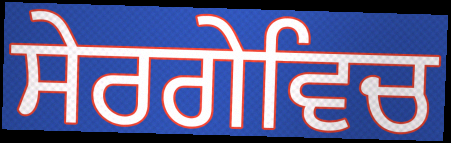
ਸੇਰਗੇਵਿਚ